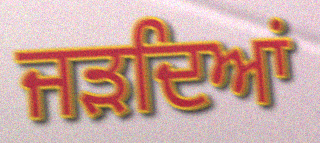
ਜੜਦਿਆਂ